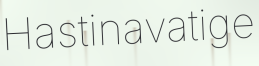
Hastinavatige